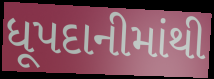
ધૂપદાનીમાંથી